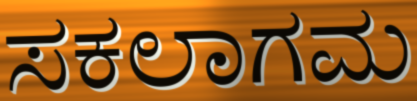
ಸಕಲಾಗಮ